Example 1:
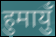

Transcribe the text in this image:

हुमायुँ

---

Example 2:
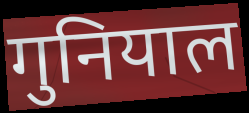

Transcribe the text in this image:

गुनियाल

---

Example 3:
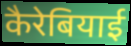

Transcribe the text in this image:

कैरेबियाई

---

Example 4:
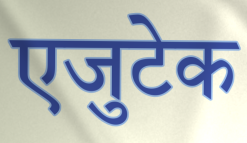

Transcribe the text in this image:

एजुटेक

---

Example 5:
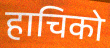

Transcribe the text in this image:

हाचिको